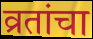
व्रतांचा